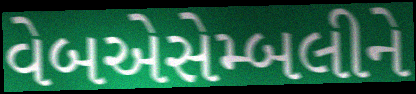
વેબએસેમ્બલીને